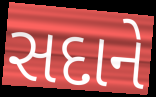
સદાને